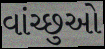
વાંચ્છુઓ